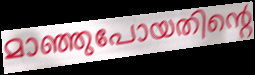
മാഞ്ഞുപോയതിന്റെ